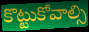
కొట్టుకోవాల్సి